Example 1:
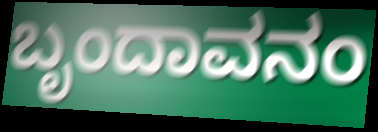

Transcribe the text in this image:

ಬೃಂದಾವನಂ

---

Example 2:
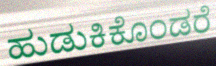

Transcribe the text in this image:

ಹುಡುಕಿಕೊಂಡರೆ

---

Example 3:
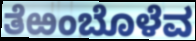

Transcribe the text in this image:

ತೆಱಂಬೊಳೆವ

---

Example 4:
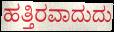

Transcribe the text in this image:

ಹತ್ತಿರವಾದುದು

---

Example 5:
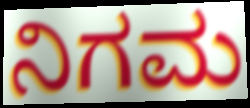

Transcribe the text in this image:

ನಿಗಮ